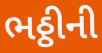
ભઠ્ઠીની